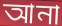
আনা